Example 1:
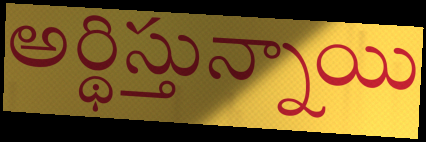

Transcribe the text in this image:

అర్థిస్తున్నాయి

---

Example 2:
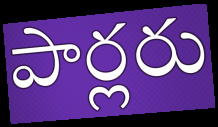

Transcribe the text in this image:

పార్లరు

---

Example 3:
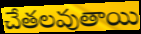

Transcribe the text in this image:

చేతలవుతాయి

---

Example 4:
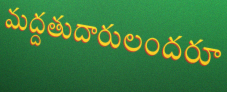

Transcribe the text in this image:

మద్దతుదారులందరూ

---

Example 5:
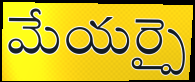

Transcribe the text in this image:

మేయర్పై